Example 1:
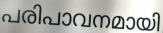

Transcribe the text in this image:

പരിപാവനമായി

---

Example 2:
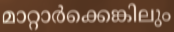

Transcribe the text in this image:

മാറ്റാർക്കെങ്കിലും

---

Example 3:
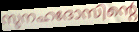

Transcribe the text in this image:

സുനഹദോസിന്റെ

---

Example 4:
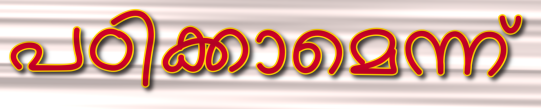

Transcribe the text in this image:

പഠിക്കാമെന്ന്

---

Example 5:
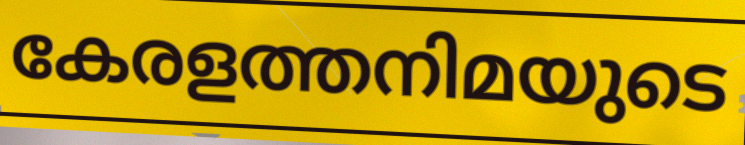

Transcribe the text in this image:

കേരളത്തനിമയുടെ